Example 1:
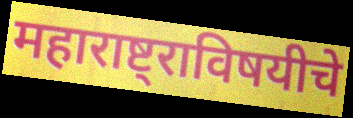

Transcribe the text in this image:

महाराष्ट्राविषयीचे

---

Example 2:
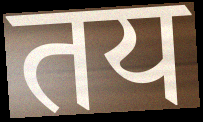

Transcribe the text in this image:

तय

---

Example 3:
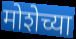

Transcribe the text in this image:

मोशेच्या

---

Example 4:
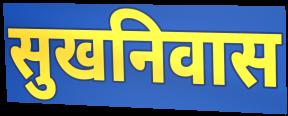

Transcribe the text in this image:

सुखनिवास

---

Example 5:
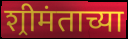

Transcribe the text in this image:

श्रीमंताच्या